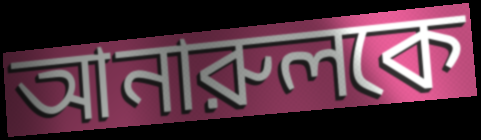
আনারুলকে